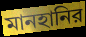
মানহানির